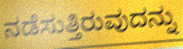
ನಡೆಸುತ್ತಿರುವುದನ್ನು